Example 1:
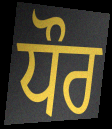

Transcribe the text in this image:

ਧੌਰ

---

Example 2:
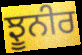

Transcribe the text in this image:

ਝੂਨੀਰ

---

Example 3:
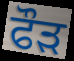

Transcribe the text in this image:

ਫੌਡ਼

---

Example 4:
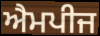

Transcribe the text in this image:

ਐਮਪੀਜ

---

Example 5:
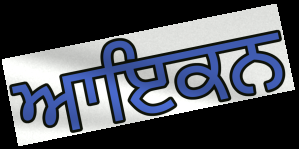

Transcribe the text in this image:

ਆਇਕਨ